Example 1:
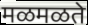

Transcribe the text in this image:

मळमळते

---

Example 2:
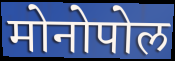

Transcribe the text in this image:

मोनोपोल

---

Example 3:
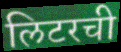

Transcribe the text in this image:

लिटरची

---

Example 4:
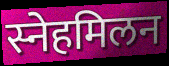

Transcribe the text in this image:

स्नेहमिलन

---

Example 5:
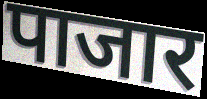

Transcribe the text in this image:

पाजार